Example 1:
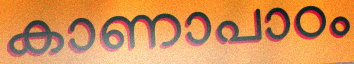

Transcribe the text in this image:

കാണാപാഠം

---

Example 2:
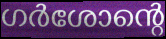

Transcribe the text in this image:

ഗർശോന്റെ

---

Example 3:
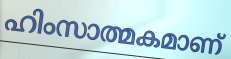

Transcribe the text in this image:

ഹിംസാത്മകമാണ്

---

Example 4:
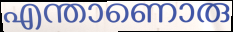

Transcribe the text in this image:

എന്താണൊരു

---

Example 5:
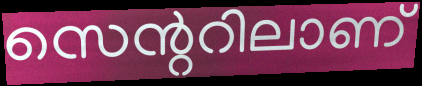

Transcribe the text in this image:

സെന്ററിലാണ്